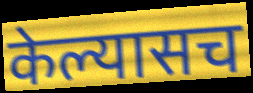
केल्यासच